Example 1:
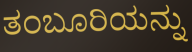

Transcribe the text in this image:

ತಂಬೂರಿಯನ್ನು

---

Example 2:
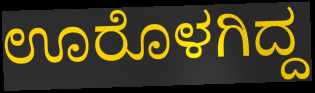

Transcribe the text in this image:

ಊರೊಳಗಿದ್ದ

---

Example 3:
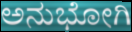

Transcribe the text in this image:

ಅನುಭೋಗಿ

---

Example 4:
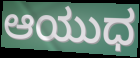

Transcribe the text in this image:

ಆಯುಧ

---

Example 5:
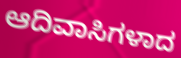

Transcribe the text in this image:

ಆದಿವಾಸಿಗಳಾದ